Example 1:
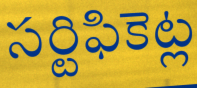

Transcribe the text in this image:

సర్టిఫికెట్ల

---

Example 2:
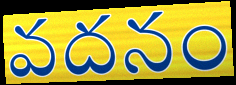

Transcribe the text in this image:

వదనం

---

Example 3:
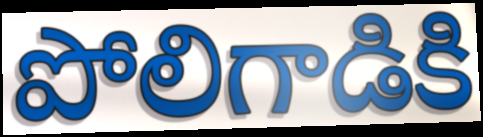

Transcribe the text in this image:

పోలిగాడికి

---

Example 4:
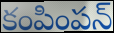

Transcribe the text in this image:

కంపింపన్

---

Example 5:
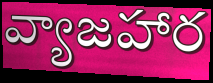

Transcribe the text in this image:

వ్యాజహార